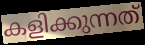
കളിക്കുന്നത്